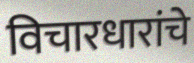
विचारधारांचे